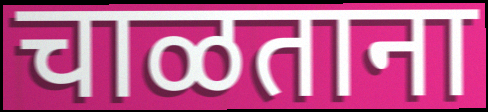
चाळताना